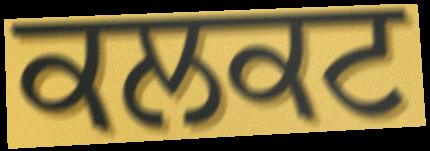
ਕਲਕਟ